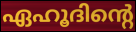
ഏഹൂദിന്റെ